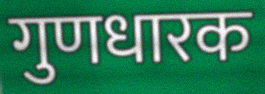
गुणधारक